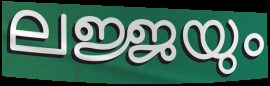
ലജ്ജയും